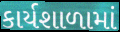
કાર્યશાળામાં